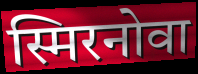
स्मिरनोवा